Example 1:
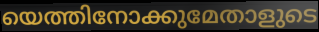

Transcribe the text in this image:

യെത്തിനോക്കുമേതാളുടെ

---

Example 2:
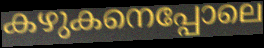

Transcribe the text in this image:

കഴുകനെപ്പോലെ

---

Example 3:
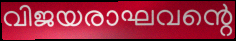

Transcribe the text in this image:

വിജയരാഘവന്റെ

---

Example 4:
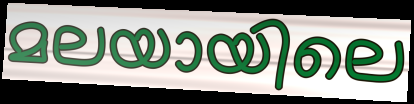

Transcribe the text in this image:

മലയായിലെ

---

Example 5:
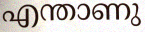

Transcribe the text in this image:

എന്താണു